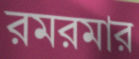
রমরমার